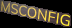
MSCONFIG